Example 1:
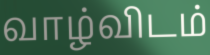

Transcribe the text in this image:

வாழ்விடம்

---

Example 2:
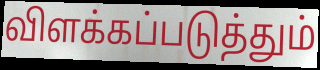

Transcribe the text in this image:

விளக்கப்படுத்தும்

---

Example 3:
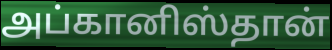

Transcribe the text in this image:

அப்கானிஸ்தான்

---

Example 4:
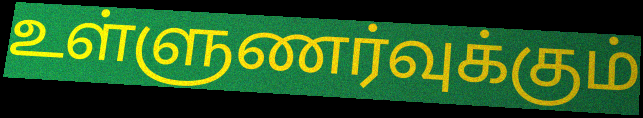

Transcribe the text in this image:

உள்ளுணர்வுக்கும்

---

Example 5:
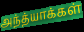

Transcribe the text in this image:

அந்த்யாக்கள்